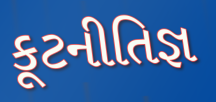
કૂટનીતિજ્ઞ